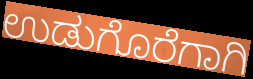
ಉಡುಗೊರೆಗಾಗಿ